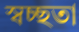
স্বচ্ছতা